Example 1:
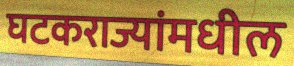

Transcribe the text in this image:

घटकराज्यांमधील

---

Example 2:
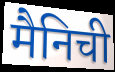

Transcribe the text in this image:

मैनिची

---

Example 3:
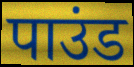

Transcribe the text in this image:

पाउंड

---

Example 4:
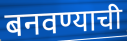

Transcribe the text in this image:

बनवण्याची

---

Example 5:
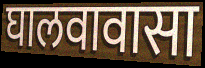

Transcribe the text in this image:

घालवावासा